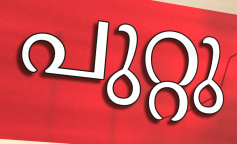
പുറ്റു